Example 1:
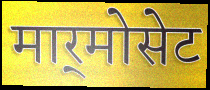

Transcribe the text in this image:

मार्मोसेट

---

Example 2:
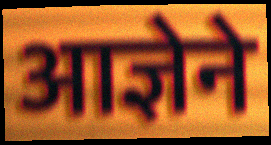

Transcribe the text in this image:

आज्ञेने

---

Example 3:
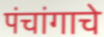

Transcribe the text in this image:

पंचांगाचे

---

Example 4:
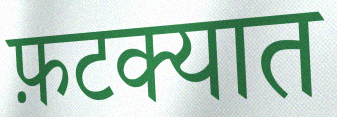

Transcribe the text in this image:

फ़टक्यात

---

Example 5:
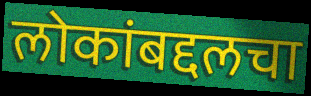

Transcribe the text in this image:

लोकांबद्दलचा